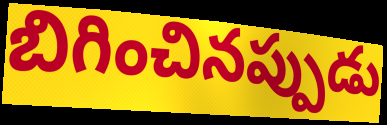
బిగించినప్పుడు